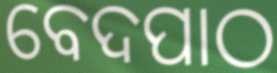
ବେଦପାଠ